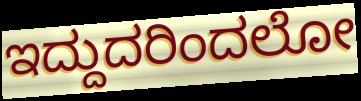
ಇದ್ದುದರಿಂದಲೋ